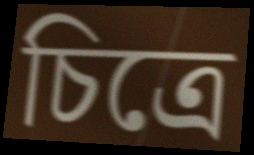
চিত্রে